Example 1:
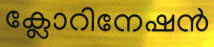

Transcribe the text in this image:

ക്ലോറിനേഷൻ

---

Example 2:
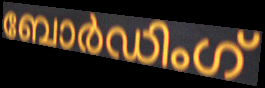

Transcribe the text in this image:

ബോർഡിംഗ്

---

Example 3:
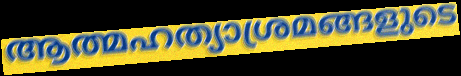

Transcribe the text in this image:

ആത്മഹത്യാശ്രമങ്ങളുടെ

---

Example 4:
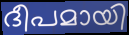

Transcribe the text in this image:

ദീപമായി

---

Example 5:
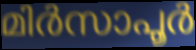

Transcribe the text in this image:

മിർസാപൂർ